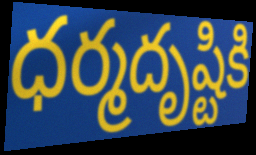
ధర్మదృష్టికి